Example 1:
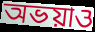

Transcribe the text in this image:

অভয়াও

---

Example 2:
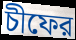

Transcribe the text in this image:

চীফের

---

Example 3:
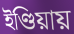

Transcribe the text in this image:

ইণ্ডিয়ায়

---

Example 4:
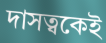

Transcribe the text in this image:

দাসত্বকেই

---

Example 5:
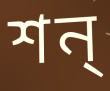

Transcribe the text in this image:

শন্